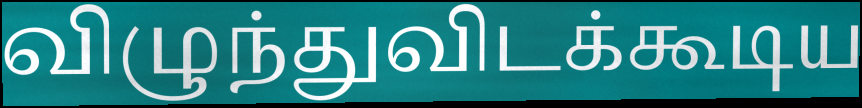
விழுந்துவிடக்கூடிய